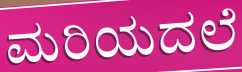
ಮರಿಯದಲೆ